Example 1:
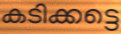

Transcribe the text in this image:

കടിക്കട്ടെ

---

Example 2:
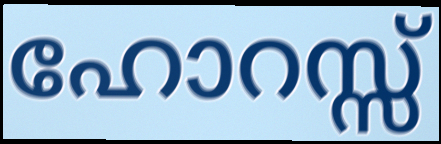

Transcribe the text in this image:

ഹോറസ്സ്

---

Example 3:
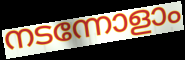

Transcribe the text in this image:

നടന്നോളാം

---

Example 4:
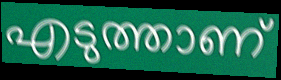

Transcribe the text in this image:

എടുത്താണ്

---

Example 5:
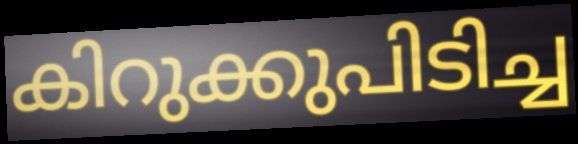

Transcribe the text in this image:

കിറുക്കുപിടിച്ച